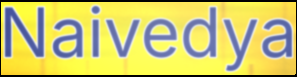
Naivedya